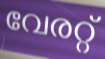
വേരറ്റ്